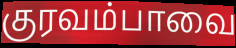
குரவம்பாவை